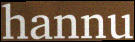
hannu